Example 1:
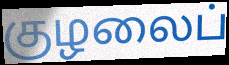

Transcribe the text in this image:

குழலைப்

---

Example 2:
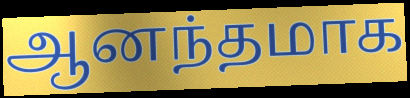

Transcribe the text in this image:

ஆனந்தமாக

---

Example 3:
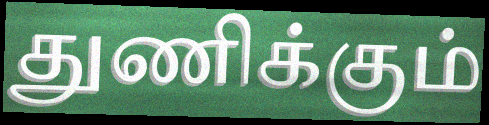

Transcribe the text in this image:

துணிக்கும்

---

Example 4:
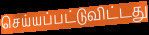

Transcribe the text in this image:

செய்யப்பட்டுவிட்டது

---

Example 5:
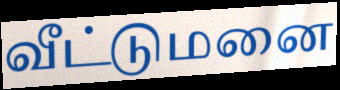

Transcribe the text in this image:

வீட்டுமனை